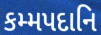
કમ્મપદાનિ